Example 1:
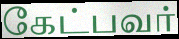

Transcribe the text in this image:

கேட்பவர்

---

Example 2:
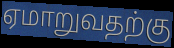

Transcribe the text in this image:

ஏமாறுவதற்கு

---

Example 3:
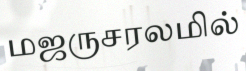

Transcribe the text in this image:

மஜருசரலமில்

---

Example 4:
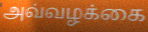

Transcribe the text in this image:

அவ்வழக்கை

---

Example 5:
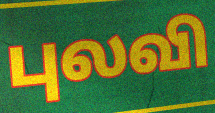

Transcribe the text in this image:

புலவி